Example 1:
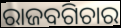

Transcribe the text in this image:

ରାଜବଗିଚାର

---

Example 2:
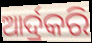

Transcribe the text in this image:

ଆର୍ଦ୍ରକରି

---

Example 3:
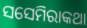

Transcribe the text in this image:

ସସେମିରାକଥା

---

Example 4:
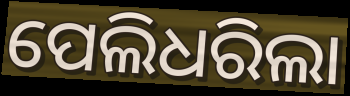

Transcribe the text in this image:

ପେଲିଧରିଲା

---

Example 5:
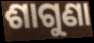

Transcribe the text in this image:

ଶାଗୁଣା